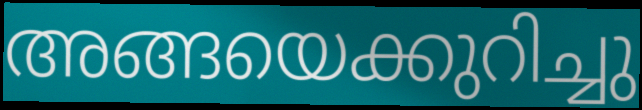
അങ്ങയെക്കുറിച്ചു